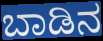
ಬಾಡಿನ